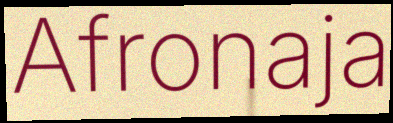
Afronaja